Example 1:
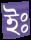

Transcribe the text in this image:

ইঃ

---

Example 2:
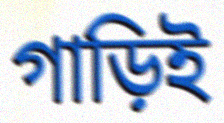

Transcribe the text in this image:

গাড়িই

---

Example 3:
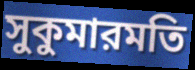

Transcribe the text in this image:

সুকুমারমতি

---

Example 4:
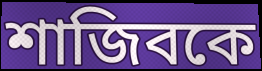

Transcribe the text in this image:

শাজিবকে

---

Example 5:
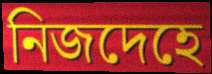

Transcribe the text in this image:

নিজদেহে